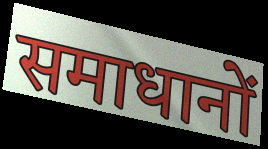
समाधानों